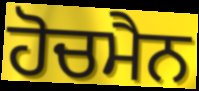
ਹੋਚਮੈਨ